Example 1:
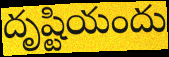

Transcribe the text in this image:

దృష్టియందు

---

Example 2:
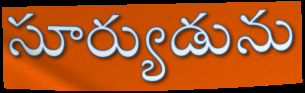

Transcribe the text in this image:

సూర్యుడును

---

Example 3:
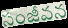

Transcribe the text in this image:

సంజీవన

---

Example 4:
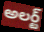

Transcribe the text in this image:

అలర్ట్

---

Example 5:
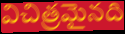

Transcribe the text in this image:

విచిత్రమైనది